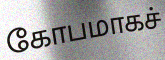
கோபமாகச்